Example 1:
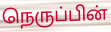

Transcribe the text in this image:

நெருப்பின்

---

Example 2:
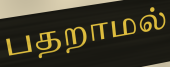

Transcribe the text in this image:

பதறாமல்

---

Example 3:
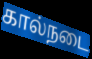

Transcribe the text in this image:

கால்நடை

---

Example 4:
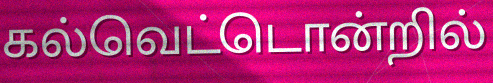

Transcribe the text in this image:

கல்வெட்டொன்றில்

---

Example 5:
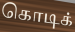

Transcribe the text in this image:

கொடிக்